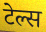
टेल्स